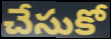
చేసుకో